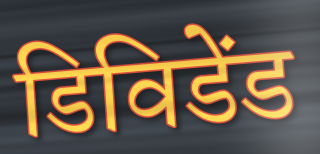
डिविडेंड